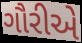
ગૌરીએ